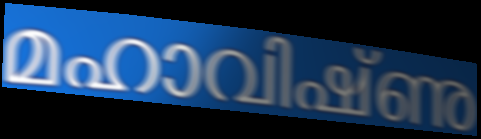
മഹാവിഷ്‌ണു